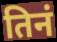
तिनं